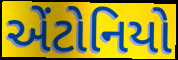
એંટોનિયો